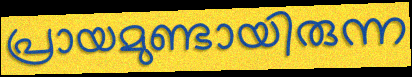
പ്രായമുണ്ടായിരുന്ന